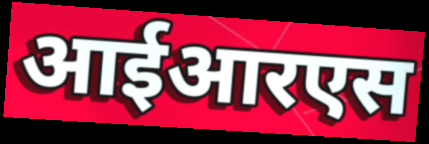
आईआरएस